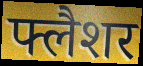
फ्लैशर